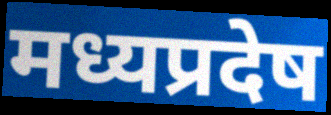
मध्यप्रदेष